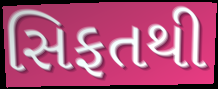
સિફતથી